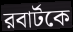
রবার্টকে